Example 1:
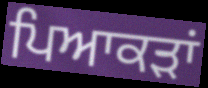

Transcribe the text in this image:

ਪਿਆਕੜਾਂ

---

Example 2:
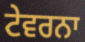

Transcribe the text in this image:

ਟੇਵਰਨਾ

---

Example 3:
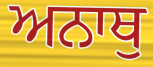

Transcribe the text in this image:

ਅਨਾਥੁ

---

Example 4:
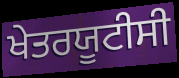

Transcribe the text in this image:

ਖੇਤਰਯੂਟੀਸੀ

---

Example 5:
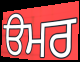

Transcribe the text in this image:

ੳਮਰ